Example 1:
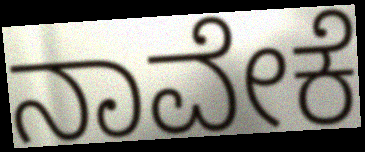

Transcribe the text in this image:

ನಾವೇಕೆ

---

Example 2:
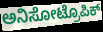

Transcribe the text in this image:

ಅನಿಸೋಟ್ರೊಪಿಕ್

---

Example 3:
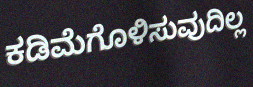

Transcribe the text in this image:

ಕಡಿಮೆಗೊಳಿಸುವುದಿಲ್ಲ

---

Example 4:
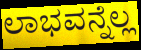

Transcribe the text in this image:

ಲಾಭವನ್ನೆಲ್ಲ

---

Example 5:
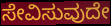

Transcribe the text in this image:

ಸೇವಿಸುವುದೇ